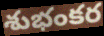
శుభంకర